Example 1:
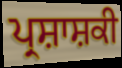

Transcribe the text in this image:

ਪ੍ਰਸ਼ਾਸ਼ਕੀ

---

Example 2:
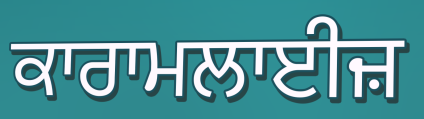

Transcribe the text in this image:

ਕਾਰਾਮਲਾਈਜ਼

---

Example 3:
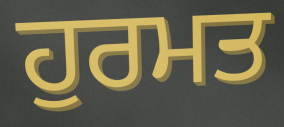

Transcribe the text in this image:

ਹੁਰਮਤ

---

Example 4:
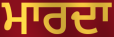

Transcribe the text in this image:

ਮਾਰਦਾ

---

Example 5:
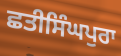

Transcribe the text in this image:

ਛਤੀਸਿੰਘਪੁਰਾ